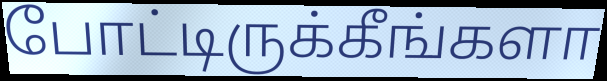
போட்டிருக்கீங்களா